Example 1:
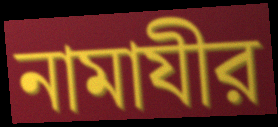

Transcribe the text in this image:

নামাযীর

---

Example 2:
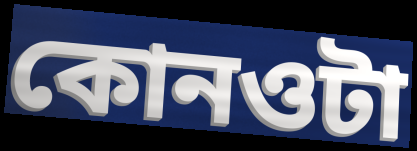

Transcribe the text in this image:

কোনওটা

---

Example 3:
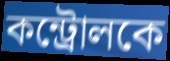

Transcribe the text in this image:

কন্ট্রোলকে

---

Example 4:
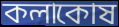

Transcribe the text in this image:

কলাকোষ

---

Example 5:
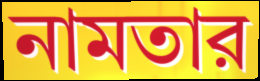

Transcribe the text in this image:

নামতার